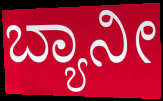
ಬ್ಯಾನೀ